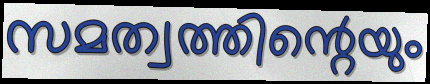
സമത്വത്തിന്റെയും